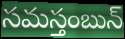
సమస్తంబున్